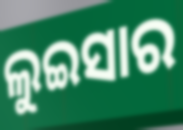
ଲୁଇସାର